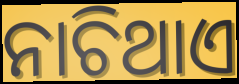
ନାଚିଥାଏ